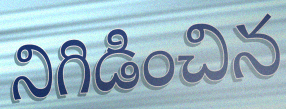
నిగిడించిన